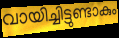
വായിച്ചിട്ടുണ്ടാകും